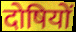
दोषियों